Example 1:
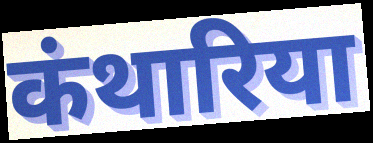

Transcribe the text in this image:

कंथारिया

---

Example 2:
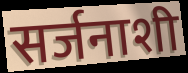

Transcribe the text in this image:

सर्जनाशी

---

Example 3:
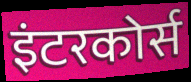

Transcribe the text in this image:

इंटरकोर्स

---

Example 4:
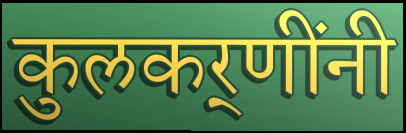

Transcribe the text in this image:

कुलकर्णींनी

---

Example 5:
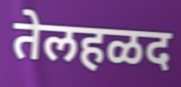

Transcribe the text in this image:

तेलहळद